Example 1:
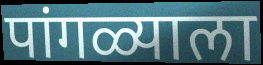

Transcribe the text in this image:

पांगळ्याला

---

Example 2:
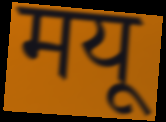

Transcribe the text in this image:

मयू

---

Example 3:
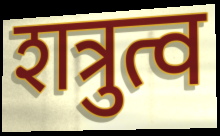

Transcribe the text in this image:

शत्रुत्व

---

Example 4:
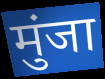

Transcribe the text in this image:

मुंजा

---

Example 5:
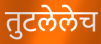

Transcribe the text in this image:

तुटलेलेच